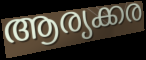
ആര്യക്കര